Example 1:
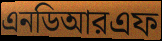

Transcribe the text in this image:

এনডিআরএফ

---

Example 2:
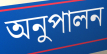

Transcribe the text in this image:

অনুপালন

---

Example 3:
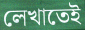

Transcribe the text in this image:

লেখাতেই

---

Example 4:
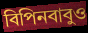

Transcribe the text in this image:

বিপিনবাবুও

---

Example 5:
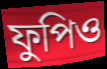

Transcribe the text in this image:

ফুপিও